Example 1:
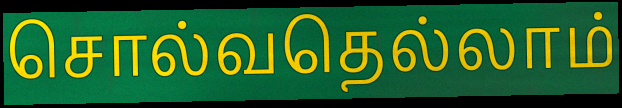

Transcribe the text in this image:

சொல்வதெல்லாம்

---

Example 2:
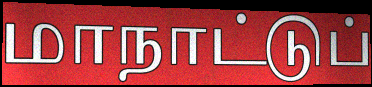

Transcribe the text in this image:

மாநாட்டுப்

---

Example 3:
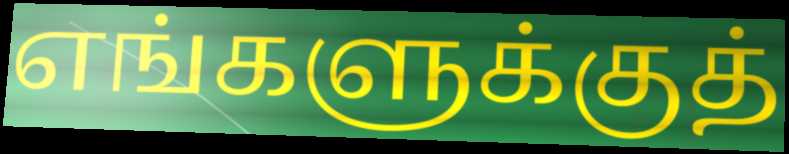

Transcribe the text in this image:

எங்களுக்குத்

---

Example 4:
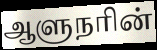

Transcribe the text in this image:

ஆளுநரின்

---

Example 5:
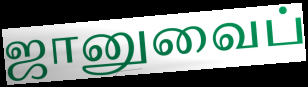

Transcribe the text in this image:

ஜானுவைப்